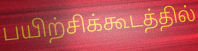
பயிற்சிக்கூடத்தில்